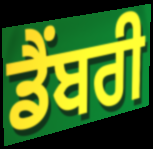
ਡੈਂਬਰੀ